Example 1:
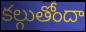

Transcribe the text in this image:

కల్గుతోందా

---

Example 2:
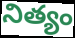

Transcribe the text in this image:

నిత్యం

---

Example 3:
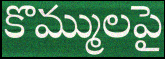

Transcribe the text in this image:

కొమ్ములపై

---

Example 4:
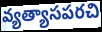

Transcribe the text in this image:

వ్యత్యాసపరచి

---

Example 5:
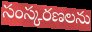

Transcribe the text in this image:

సంస్కరణలను